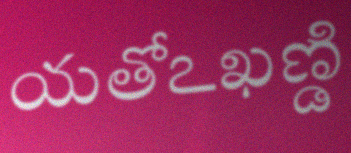
యతోఽఖణ్డి